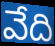
వేది